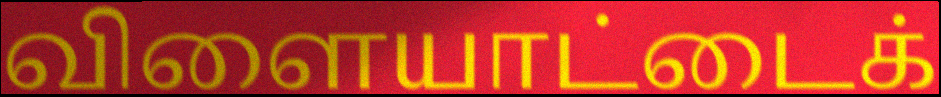
விளையாட்டைக்